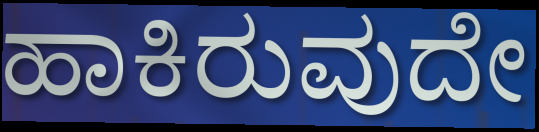
ಹಾಕಿರುವುದೇ